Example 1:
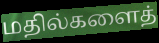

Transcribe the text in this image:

மதில்களைத்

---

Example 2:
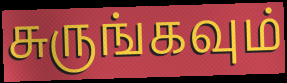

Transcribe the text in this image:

சுருங்கவும்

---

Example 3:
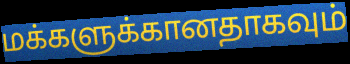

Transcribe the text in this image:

மக்களுக்கானதாகவும்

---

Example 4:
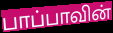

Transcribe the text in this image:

பாப்பாவின்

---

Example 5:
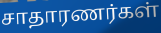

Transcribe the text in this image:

சாதாரணர்கள்